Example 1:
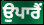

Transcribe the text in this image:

ਉਪਾਰੈਂ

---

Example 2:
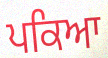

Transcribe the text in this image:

ਪਕਿਆ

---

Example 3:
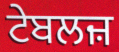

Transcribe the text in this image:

ਟੇਬਲਜ਼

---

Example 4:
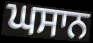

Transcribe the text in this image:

ਘਸਾਨ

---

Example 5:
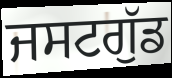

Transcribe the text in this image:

ਜਸਟਗੁੱਡ